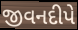
જીવનદીપે